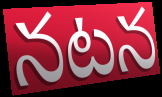
నటన